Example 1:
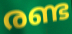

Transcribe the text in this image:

രണ്ട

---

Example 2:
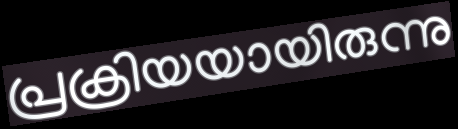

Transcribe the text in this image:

പ്രക്രിയയായിരുന്നു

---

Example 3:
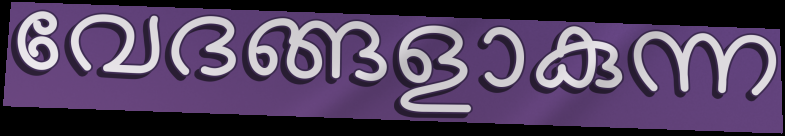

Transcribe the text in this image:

വേദങ്ങളാകുന്ന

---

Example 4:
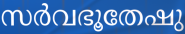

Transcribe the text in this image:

സർവഭൂതേഷു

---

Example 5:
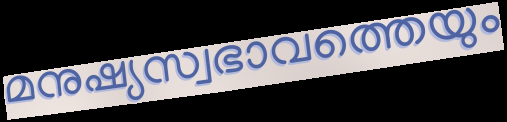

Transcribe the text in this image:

മനുഷ്യസ്വഭാവത്തെയും